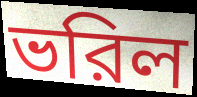
ভরিল